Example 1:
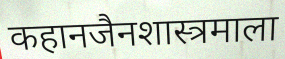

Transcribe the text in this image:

कहानजैनशास्त्रमाला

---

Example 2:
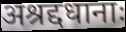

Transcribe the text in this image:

अश्रद्दधानाः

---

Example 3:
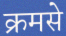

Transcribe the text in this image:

क्रमसे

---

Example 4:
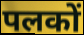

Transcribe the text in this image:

पलकों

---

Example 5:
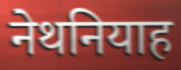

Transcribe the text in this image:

नेथनियाह